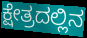
ಕ್ಷೇತ್ರದಲ್ಲಿನ